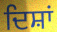
ਦਿਸ਼ਾਂ